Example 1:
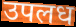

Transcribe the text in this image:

उपलध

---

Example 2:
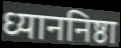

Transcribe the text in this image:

ध्याननिष्ठा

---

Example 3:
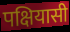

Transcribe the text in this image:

पक्षियासी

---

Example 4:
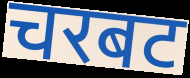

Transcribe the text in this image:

चरबट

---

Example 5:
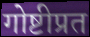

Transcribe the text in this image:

गोष्टीप्रत